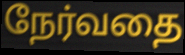
நேர்வதை